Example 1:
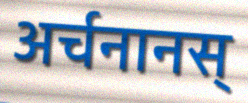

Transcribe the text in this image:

अर्चनानस्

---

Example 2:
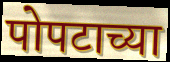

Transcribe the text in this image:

पोपटाच्या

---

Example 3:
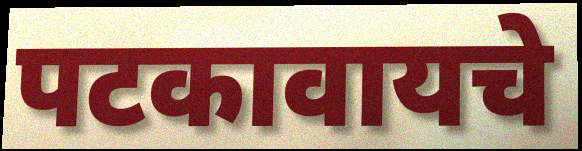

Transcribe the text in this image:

पटकावायचे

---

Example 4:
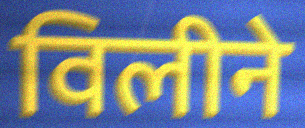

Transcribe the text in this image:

विलीने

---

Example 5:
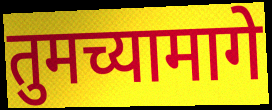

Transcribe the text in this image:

तुमच्यामागे